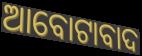
ଆବୋଟାବାଦ